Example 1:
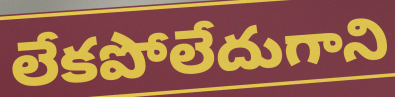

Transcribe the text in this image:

లేకపోలేదుగాని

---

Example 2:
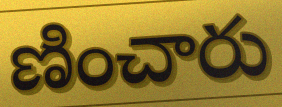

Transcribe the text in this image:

ణించారు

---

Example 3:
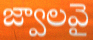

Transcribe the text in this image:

జ్వాలవై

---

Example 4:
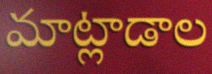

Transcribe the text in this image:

మాట్లాడాల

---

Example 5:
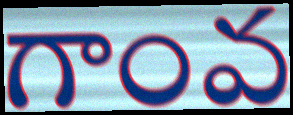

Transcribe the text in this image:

గాంవ